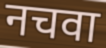
नचवा